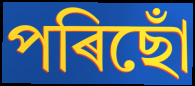
পৰিছোঁ